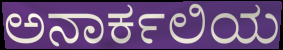
ಅನಾರ್ಕಲಿಯ